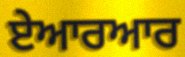
ਏਆਰਆਰ